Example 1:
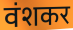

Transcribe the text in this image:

वंशकर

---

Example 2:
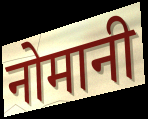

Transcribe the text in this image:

नोमानी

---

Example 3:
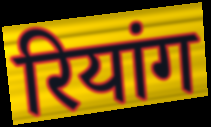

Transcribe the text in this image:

रियांग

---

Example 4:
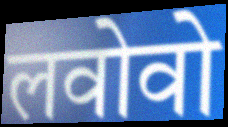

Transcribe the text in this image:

लवोवो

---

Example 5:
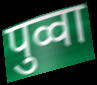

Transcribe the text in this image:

पुव्वा